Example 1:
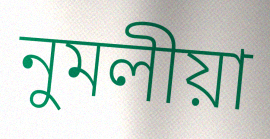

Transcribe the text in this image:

নুমলীয়া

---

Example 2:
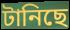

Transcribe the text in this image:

টানিছে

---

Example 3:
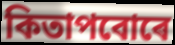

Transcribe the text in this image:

কিতাপবোৰে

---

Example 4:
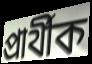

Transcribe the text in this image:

প্ৰাৰ্থীক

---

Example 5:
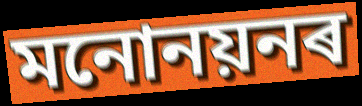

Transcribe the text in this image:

মনোনয়নৰ